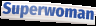
Superwoman